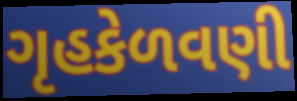
ગૃહકેળવણી